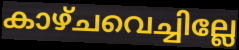
കാഴ്ചവെച്ചില്ലേ